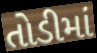
તોડીમાં